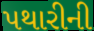
પથારીની